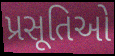
પ્રસૂતિઓ